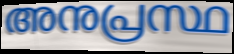
അനുപ്രസ്ഥ